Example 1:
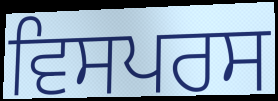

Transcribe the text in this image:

ਵਿਸਪਰਸ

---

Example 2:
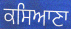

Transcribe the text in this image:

ਕਸਿਆਣਾ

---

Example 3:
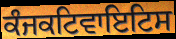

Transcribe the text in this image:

ਕੰਜਕਟਿਵਾਇਟਿਸ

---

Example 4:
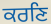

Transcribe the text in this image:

ਕਰਣਿ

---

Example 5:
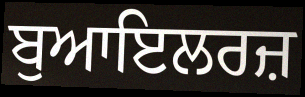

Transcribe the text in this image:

ਬੁਆਇਲਰਜ਼